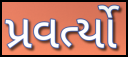
પ્રવર્ત્યો